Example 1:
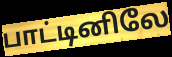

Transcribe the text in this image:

பாட்டினிலே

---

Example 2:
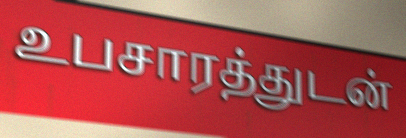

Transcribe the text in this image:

உபசாரத்துடன்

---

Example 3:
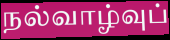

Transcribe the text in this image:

நல்வாழ்வுப்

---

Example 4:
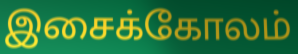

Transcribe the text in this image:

இசைக்கோலம்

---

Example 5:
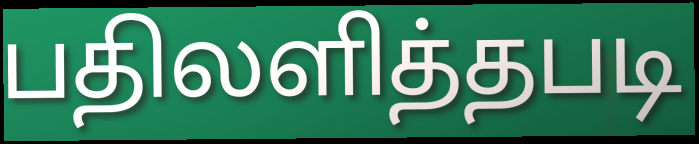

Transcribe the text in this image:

பதிலளித்தபடி